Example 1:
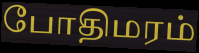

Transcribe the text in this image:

போதிமரம்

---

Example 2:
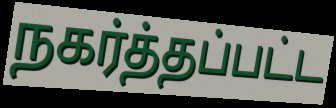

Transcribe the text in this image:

நகர்த்தப்பட்ட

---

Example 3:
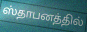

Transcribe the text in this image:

ஸ்தாபனத்தில்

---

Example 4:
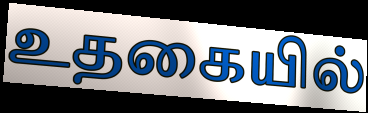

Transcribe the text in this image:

உதகையில்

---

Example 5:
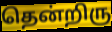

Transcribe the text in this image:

தென்றிரு